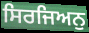
ਸਿਰਜਿਅਨੁ